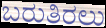
ಬರುತಿರಲು